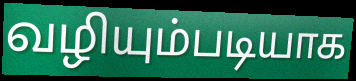
வழியும்படியாக